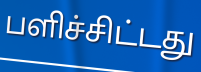
பளிச்சிட்டது